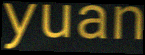
yuan